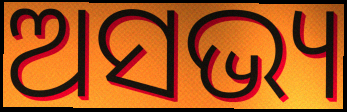
ଅସଭ୍ୟ